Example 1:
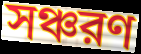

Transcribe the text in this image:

সঞ্চরণ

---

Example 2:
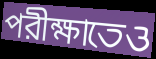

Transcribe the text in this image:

পরীক্ষাতেও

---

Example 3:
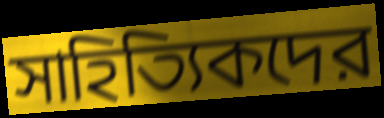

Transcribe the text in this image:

সাহিত্যিকদের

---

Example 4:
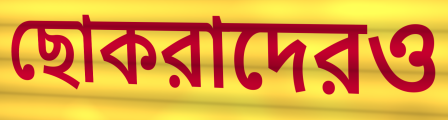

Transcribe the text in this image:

ছোকরাদেরও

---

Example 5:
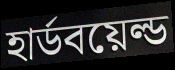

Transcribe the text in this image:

হার্ডবয়েল্ড